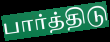
பார்த்திடு